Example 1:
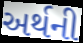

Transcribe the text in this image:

અર્થની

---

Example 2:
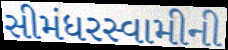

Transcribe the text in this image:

સીમંધરસ્વામીની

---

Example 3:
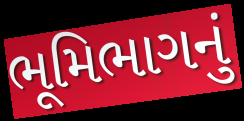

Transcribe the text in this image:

ભૂમિભાગનું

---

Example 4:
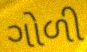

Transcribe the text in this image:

ગોળી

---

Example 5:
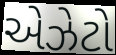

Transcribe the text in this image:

એઝેટો